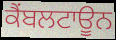
ਕੈਂਬਲਟਾਊਨ